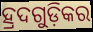
ହ୍ରଦଗୁଡ଼ିକର